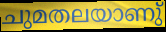
ചുമതലയാണു്